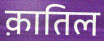
क़ातिल